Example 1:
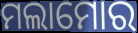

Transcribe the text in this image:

ମଲାମୋର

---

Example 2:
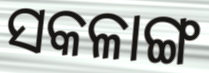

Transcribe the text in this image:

ସକଳାଙ୍ଗ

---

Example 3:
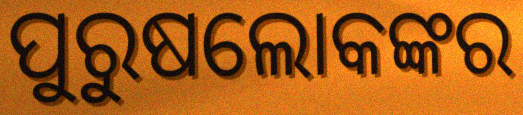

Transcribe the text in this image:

ପୁରୁଷଲୋକଙ୍କର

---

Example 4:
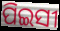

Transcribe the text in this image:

ପିଇସୀ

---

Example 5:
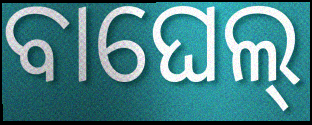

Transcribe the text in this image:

ବାଘେଲ୍